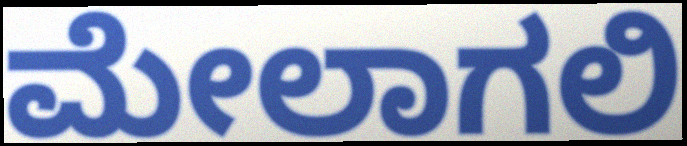
ಮೇಲಾಗಲಿ